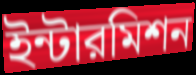
ইন্টারমিশন